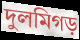
দুলমিগড়